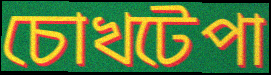
চোখটেপা